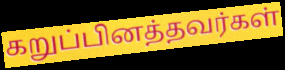
கறுப்பினத்தவர்கள்